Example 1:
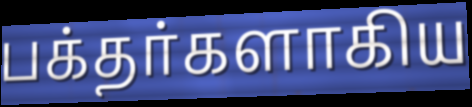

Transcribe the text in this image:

பக்தர்களாகிய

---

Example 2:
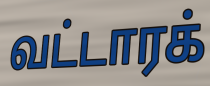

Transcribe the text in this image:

வட்டாரக்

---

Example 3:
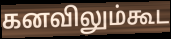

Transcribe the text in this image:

கனவிலும்கூட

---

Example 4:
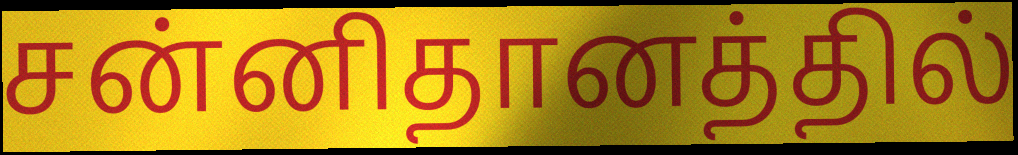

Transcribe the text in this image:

சன்னிதானத்தில்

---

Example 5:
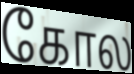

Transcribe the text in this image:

கோல